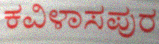
ಕವಿಳಾಸಪುರ